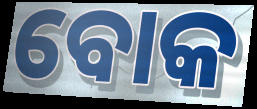
ବୋକ